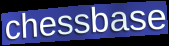
chessbase